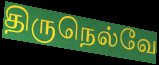
திருநெல்வே